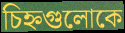
চিহ্নগুলোকে